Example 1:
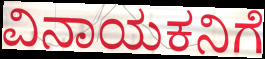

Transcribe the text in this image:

ವಿನಾಯಕನಿಗೆ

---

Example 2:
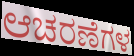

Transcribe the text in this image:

ಆಚರಣೆಗಳ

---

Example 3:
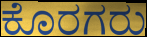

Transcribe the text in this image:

ಕೊರಗರು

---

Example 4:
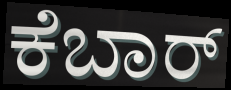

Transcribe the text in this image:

ಕೆಬಾರ್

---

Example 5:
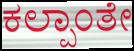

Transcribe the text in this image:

ಕಲ್ಪಾಂತೇ